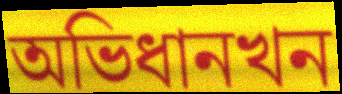
অভিধানখন